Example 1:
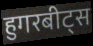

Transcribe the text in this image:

हुगरबीट्स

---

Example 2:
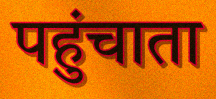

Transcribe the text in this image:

पहुंचाता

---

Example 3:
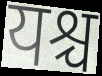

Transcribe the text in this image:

यश्च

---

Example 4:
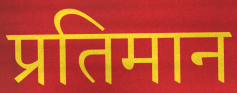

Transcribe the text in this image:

प्रतिमान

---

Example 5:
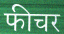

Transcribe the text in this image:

फीचर